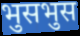
भुसभुस